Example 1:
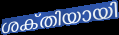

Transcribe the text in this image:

ശക്‌തിയായി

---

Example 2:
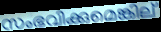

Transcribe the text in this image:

സംഭവിക്കുമെങ്കില്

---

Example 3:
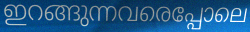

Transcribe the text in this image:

ഇറങ്ങുന്നവരെപ്പോലെ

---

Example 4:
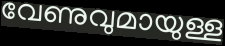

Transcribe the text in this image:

വേണുവുമായുള്ള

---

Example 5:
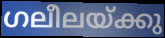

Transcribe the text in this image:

ഗലീലയ്ക്കു